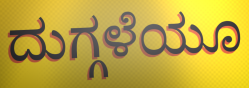
ದುಗ್ಗಳೆಯೂ